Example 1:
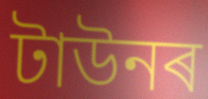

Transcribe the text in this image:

টাউনৰ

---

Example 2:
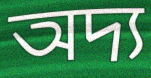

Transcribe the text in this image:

অদ্য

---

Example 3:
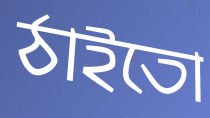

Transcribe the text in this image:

ঠাইতো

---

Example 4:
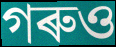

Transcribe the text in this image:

গৰুও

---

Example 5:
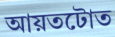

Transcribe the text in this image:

আয়তটোত